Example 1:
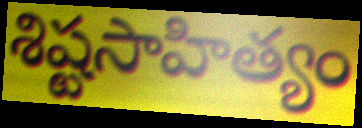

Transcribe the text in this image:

శిష్టసాహిత్యం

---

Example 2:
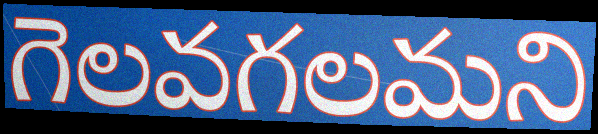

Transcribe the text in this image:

గెలవగలమని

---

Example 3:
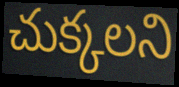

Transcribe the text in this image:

చుక్కలని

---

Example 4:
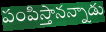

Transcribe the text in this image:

పంపిస్తానన్నాడు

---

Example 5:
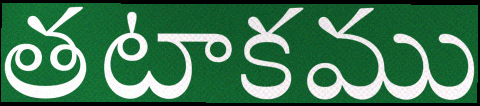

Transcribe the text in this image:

తటాకము